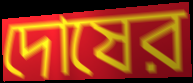
দোষের